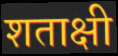
शताक्षी